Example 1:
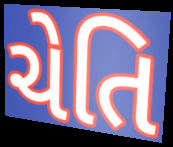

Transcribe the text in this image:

ચેતિ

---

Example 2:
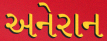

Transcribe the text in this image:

અનેરાન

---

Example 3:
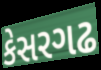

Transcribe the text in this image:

કેસરગઢ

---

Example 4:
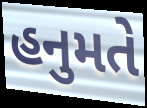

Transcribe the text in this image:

હનુમતે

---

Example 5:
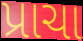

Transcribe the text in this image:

પ્રાચા